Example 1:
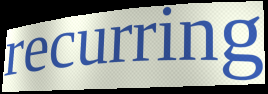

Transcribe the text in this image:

recurring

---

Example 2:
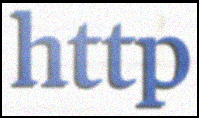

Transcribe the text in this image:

http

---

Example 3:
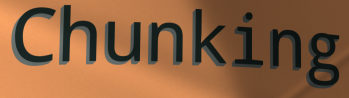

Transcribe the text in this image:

Chunking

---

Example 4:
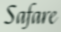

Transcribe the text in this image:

Safare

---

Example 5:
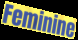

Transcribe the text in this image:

Feminine